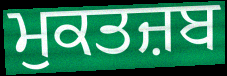
ਮੁਕਤਜ਼ਬ